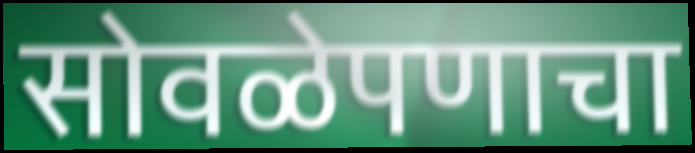
सोवळेपणाचा